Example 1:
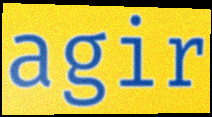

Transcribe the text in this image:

agir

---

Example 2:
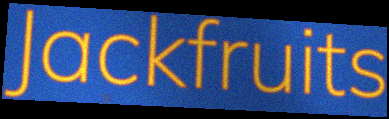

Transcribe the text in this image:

Jackfruits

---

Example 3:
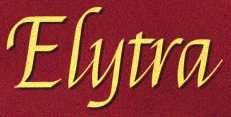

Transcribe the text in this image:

Elytra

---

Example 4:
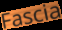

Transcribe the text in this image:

Fascia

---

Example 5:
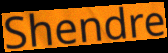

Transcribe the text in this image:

Shendre